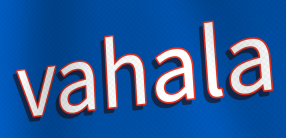
vahala